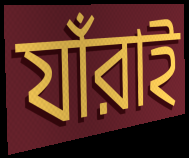
যাঁরাই